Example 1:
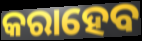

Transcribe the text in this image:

କରାହେବ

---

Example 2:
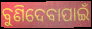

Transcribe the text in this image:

ବୁଣିଦେବାପାଇଁ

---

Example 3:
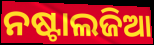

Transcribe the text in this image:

ନଷ୍ଟାଲଜିଆ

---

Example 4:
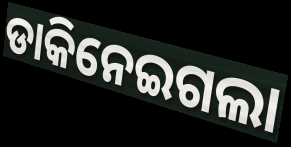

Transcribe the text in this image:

ଡାକିନେଇଗଲା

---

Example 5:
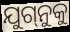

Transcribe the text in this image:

ଯୁଗ୍‌ନୁକୁ